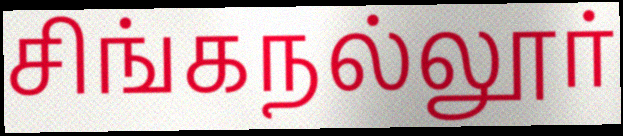
சிங்கநல்லூர்